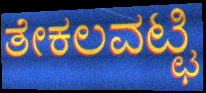
ತೇಕಲವಟ್ಟಿ